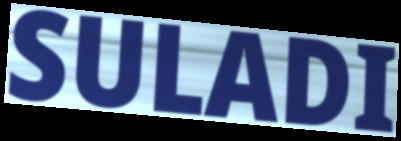
SULADI